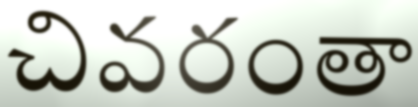
చివరంతా